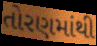
તોરણમાંથી